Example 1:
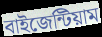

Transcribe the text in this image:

বাইজেন্টিয়াম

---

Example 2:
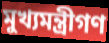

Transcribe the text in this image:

মুখ্যমন্ত্রীগণ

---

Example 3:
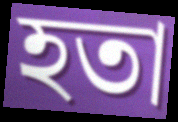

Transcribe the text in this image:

হতা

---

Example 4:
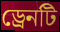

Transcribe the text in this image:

ড্রেনটি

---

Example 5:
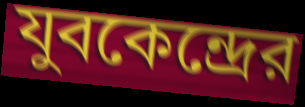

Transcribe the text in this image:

যুবকেন্দ্রের